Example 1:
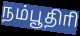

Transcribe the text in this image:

நம்பூதிரி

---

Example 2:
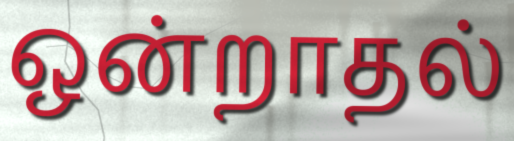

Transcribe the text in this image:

ஒன்றாதல்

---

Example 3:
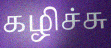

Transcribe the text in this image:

கழிச்சு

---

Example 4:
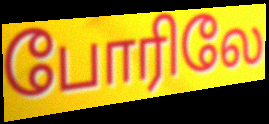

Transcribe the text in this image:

போரிலே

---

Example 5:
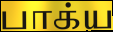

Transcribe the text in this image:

பாக்ய